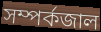
সম্পর্কজাল